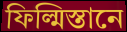
ফিল্মিস্তানে